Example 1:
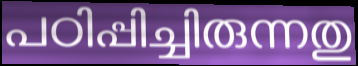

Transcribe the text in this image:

പഠിപ്പിച്ചിരുന്നതു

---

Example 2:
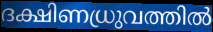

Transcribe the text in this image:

ദക്ഷിണധ്രുവത്തിൽ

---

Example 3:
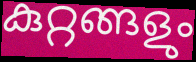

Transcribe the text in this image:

കുറ്റങ്ങളും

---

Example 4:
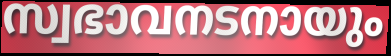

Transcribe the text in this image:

സ്വഭാവനടനായും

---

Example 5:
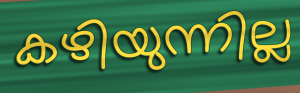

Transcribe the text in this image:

കഴിയുന്നില്ല